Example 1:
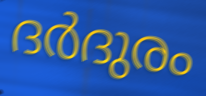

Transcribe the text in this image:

ദർദുരം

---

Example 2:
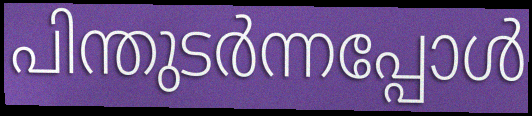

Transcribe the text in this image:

പിന്തുടർന്നപ്പോൾ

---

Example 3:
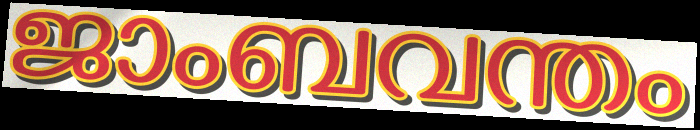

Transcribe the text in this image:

ജാംബവന്തം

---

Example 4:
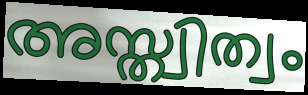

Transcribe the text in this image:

അസ്ത്വിത്വം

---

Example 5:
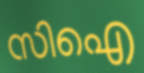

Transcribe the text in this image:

സിഐ